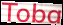
Toba